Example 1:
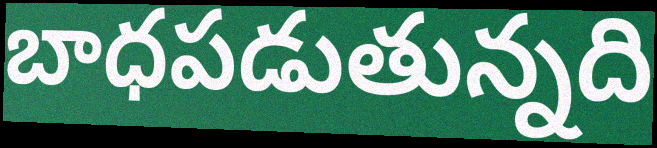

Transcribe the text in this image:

బాధపడుతున్నది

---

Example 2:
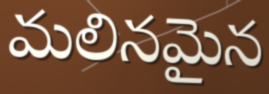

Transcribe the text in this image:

మలినమైన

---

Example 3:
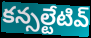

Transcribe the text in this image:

కన్సల్టేటివ్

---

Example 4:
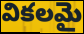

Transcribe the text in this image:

వికలమై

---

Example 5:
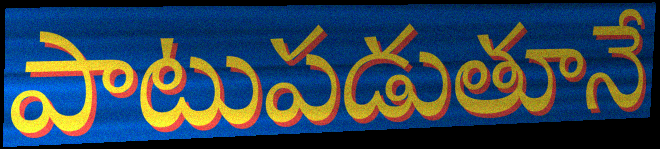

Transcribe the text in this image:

పాటుపడుతూనే